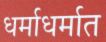
धर्माधर्मात